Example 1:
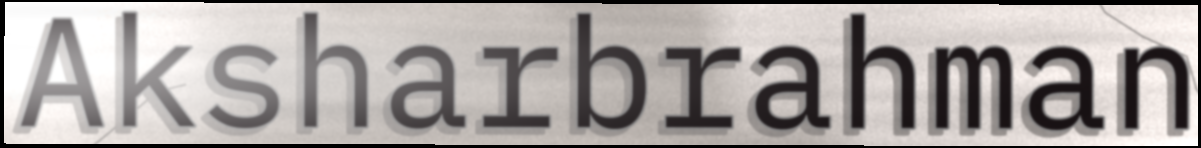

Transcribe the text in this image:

Aksharbrahman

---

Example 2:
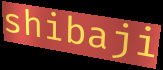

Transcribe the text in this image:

shibaji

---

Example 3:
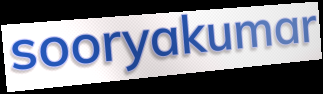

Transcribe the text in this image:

sooryakumar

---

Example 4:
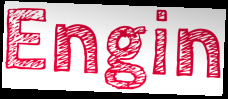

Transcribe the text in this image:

Engin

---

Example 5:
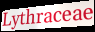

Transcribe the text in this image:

Lythraceae